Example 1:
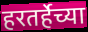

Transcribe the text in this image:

हरतर्हेच्या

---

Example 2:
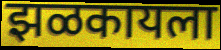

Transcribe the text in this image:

झळकायला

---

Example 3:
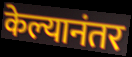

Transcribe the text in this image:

केल्यानंतर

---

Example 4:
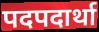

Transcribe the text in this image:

पदपदार्था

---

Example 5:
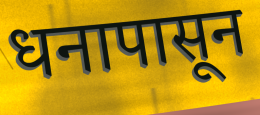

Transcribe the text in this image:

धनापासून